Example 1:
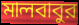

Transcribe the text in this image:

মালবাবুর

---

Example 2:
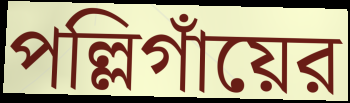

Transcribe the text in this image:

পল্লিগাঁয়ের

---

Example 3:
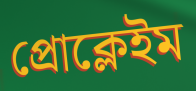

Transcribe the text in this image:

প্রোক্লেইম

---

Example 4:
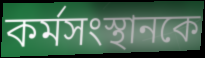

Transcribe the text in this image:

কর্মসংস্থানকে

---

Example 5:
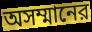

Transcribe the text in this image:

অসম্মানের